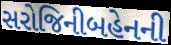
સરોજિનીબહેનની